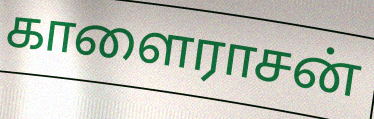
காளைராசன்